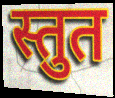
स्तुत